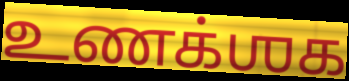
உணக்ஶக